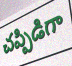
చప్పిడిగా